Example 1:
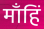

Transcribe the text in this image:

माँहिं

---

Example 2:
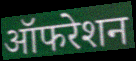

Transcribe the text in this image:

ऑफरेशन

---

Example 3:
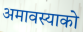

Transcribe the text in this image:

अमावस्याको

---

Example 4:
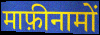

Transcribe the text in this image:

माफ़ीनामों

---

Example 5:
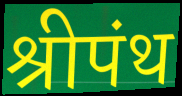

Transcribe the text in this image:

श्रीपंथ